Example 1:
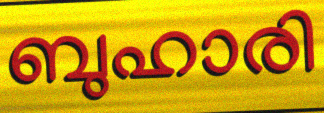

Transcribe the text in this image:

ബുഹാരി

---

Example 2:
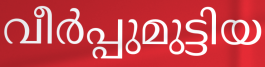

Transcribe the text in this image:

വീർപ്പുമുട്ടിയ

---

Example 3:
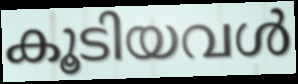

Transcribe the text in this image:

കൂടിയവൾ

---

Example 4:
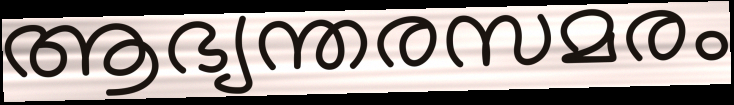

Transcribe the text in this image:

ആഭ്യന്തരസമരം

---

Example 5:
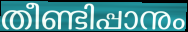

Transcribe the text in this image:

തീണ്ടിപ്പാനും